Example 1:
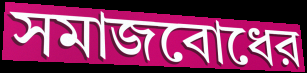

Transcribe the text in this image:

সমাজবোধের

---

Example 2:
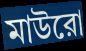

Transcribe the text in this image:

মাউরো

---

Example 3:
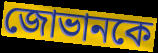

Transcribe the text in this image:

জোভানকে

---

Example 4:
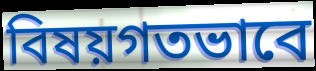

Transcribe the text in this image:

বিষয়গতভাবে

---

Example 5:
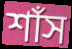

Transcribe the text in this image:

শাঁস